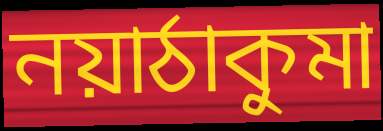
নয়াঠাকুমা